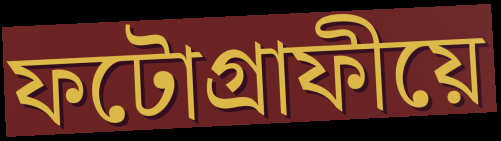
ফটোগ্ৰাফীয়ে